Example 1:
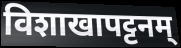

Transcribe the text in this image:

विशाखापट्टनम्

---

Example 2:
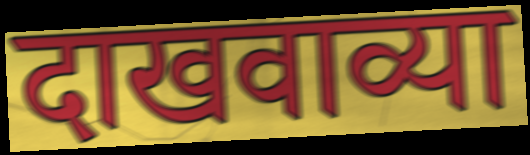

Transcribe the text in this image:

दाखवाव्या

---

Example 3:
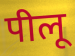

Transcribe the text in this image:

पीलू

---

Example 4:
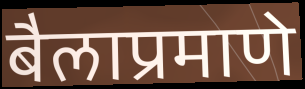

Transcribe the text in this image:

बैलाप्रमाणे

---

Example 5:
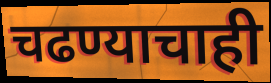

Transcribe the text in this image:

चढण्याचाही